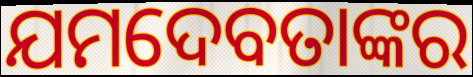
ଯମଦେବତାଙ୍କର